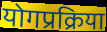
योगप्रक्रिया